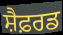
ਸ਼ੈਫ਼ਰਡ